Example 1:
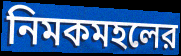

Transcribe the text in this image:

নিমকমহলের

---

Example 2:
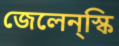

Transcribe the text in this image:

জেলেন্স্কি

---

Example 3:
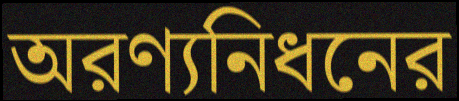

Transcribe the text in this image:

অরণ্যনিধনের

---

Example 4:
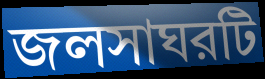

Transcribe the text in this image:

জলসাঘরটি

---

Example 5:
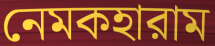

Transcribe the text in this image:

নেমকহারাম